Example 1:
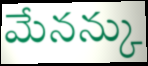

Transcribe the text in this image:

మేనన్కు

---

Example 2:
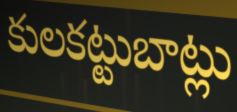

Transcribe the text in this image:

కులకట్టుబాట్లు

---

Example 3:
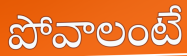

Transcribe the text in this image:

పోవాలంటే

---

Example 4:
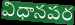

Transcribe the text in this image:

విధానపర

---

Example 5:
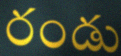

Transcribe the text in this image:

రండు